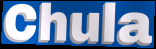
Chula